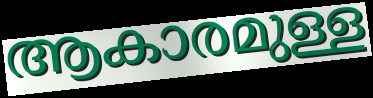
ആകാരമുള്ള